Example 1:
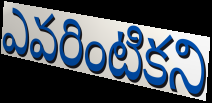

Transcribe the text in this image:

ఎవరింటికని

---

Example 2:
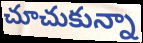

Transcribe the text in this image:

చూచుకున్నా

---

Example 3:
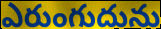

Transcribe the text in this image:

ఎరుంగుదును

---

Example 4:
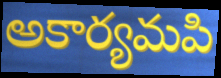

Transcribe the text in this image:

అకార్యమపి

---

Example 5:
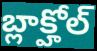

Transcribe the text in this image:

బ్లాక్హోల్